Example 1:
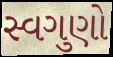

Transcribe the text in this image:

સ્વગુણો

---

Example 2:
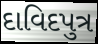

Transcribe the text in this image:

દાવિદપુત્ર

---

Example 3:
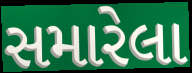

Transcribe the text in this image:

સમારેલા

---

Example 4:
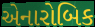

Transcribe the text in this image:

એનારોબિક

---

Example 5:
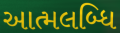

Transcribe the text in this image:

આત્મલબ્ધિ